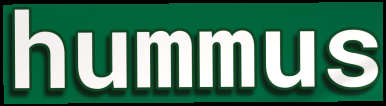
hummus